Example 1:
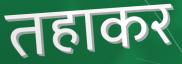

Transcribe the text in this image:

तहाकर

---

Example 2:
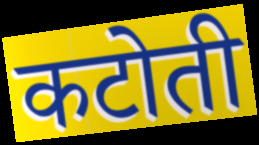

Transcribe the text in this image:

कटोती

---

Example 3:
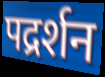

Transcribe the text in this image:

पद्रर्शन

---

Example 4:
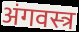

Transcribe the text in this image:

अंगवस्त्र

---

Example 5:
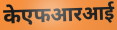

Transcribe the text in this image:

केएफआरआई